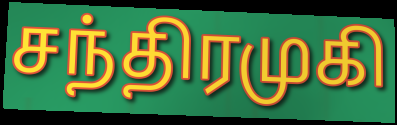
சந்திரமுகி